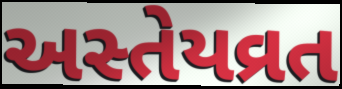
અસ્તેયવ્રત